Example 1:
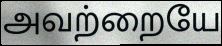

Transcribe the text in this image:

அவற்றையே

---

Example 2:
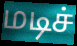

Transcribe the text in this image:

மடிச்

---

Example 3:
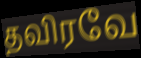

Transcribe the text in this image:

தவிரவே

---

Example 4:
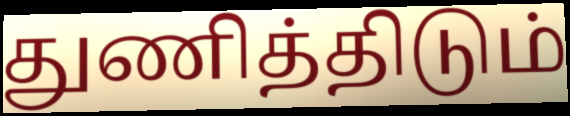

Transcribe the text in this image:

துணித்திடும்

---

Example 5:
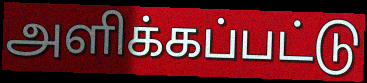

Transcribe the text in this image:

அளிக்கப்பட்டு